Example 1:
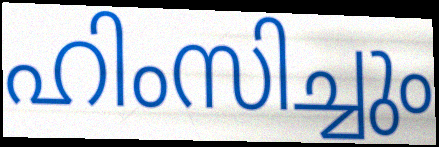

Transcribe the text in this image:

ഹിംസിച്ചും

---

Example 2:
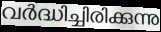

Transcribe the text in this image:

വർദ്ധിച്ചിരിക്കുന്നു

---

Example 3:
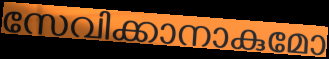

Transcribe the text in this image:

സേവിക്കാനാകുമോ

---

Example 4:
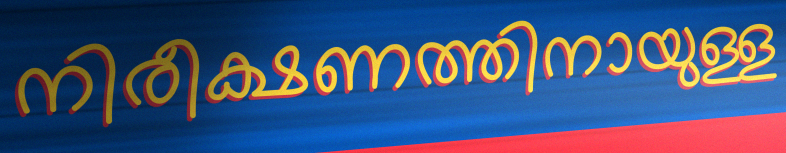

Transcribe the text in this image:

നിരീക്ഷണത്തിനായുള്ള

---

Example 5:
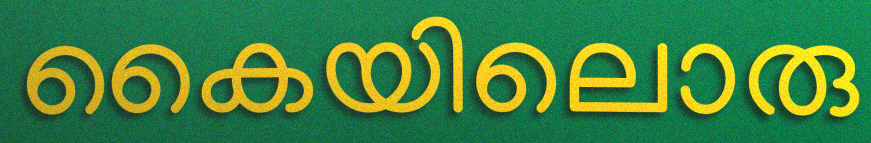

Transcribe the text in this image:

കൈയിലൊരു